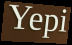
Yepi